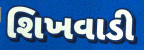
શિખવાડી